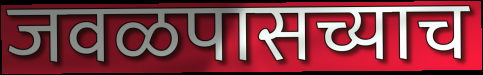
जवळपासच्याच